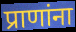
प्राणांना